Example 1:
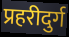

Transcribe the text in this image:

प्रहरीदुर्ग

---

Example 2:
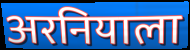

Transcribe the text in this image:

अरनियाला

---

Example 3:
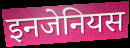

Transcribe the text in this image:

इनजेनियस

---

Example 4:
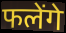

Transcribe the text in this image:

फलेंगे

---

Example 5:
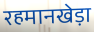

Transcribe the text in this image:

रहमानखेड़ा